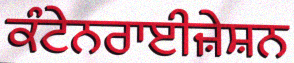
ਕੰਟੇਨਰਾਈਜ਼ੇਸ਼ਨ